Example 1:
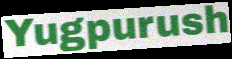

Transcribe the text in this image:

Yugpurush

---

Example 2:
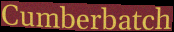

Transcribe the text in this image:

Cumberbatch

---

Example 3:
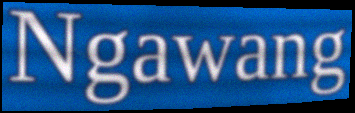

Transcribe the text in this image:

Ngawang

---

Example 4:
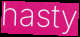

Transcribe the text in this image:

hasty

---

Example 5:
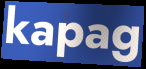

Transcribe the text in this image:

kapag